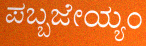
ಪಬ್ಬಜೇಯ್ಯಂ